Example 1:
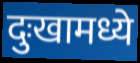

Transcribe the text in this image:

दुःखामध्ये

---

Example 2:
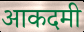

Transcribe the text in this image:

आकदमी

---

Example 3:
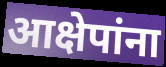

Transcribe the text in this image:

आक्षेपांना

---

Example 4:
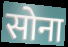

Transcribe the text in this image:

सोना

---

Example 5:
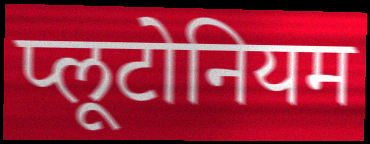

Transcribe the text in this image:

प्लूटोनियम